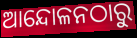
ଆନ୍ଦୋଳନଠାରୁ